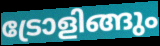
ട്രോളിങ്ങും